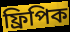
ফ্রিপিক